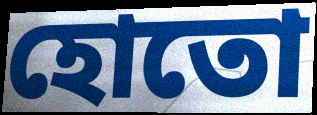
হোতো